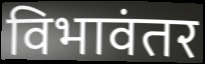
विभावंतर